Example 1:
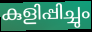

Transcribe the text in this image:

കുളിപ്പിച്ചും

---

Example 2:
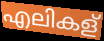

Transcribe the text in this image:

എലികള്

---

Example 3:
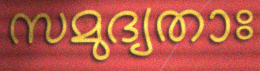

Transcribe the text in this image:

സമുദ്യതാഃ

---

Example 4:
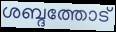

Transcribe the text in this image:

ശബ്ദത്തോട്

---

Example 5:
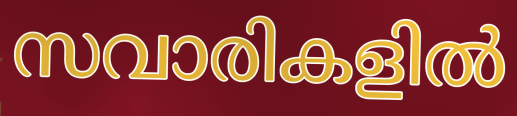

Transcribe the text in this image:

സവാരികളിൽ